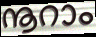
നൂറാം